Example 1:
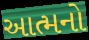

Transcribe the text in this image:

આત્મનો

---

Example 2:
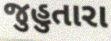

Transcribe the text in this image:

જુહુતારા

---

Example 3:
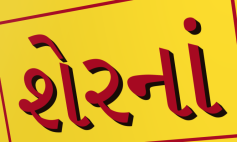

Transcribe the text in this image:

શેરનાં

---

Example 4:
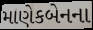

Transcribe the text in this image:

માણેકબેનના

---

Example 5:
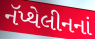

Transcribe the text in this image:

નૅપ્થેલીનનાં